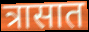
त्रासात